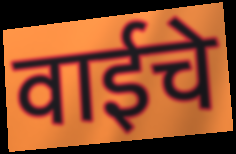
वाईचे